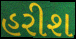
હરીશ